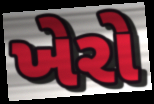
ખેરો